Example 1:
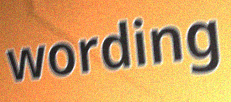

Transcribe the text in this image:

wording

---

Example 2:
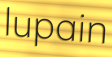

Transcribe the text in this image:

lupain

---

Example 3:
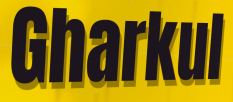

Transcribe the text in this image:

Gharkul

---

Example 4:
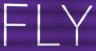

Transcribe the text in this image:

FLY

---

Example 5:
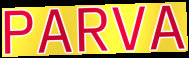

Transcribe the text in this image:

PARVA